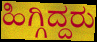
ಹಿಗ್ಗಿದ್ದರು